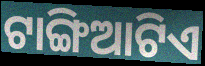
ଟାଙ୍ଗିଆଟିଏ